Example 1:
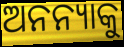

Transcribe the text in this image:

ଅନନ୍ୟାକୁ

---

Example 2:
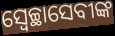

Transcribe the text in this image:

ସ୍ୱେଚ୍ଛାସେବୀଙ୍କ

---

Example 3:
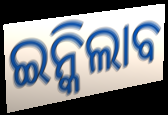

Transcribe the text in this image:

ଇନ୍କିଲାବ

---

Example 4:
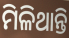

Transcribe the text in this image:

ମିଳିଥାନ୍ତି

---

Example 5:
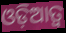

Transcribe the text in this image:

ଓଡ଼ିଆତ୍ୱ